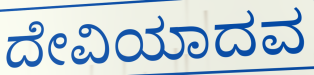
ದೇವಿಯಾದವ